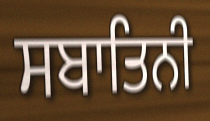
ਸਬਾਤਿਨੀ